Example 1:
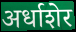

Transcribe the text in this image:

अर्धाशेर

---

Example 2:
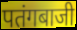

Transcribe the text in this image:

पतंगबाजी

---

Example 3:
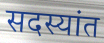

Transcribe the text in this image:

सदस्यांत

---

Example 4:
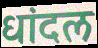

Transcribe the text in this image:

धांदल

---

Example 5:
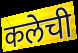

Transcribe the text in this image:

कलेची